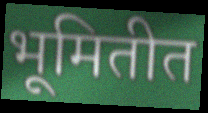
भूमितीत